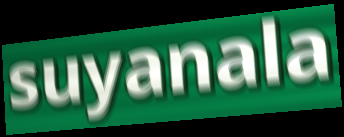
suyanala